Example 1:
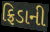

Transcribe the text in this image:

ફ્રિડાની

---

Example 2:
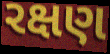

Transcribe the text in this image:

રક્ષણ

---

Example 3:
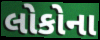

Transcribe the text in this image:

લોકોના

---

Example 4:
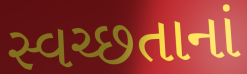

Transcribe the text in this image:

સ્વચ્છતાનાં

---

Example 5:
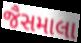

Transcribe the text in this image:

જૈસમાલા